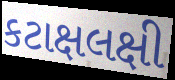
કટાક્ષલક્ષી